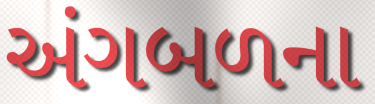
અંગબળના